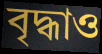
বৃদ্ধাও